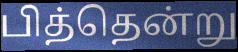
பித்தென்று